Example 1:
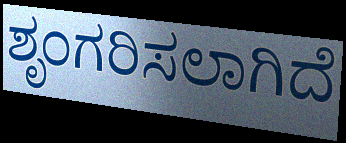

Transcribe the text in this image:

ಶೃಂಗರಿಸಲಾಗಿದೆ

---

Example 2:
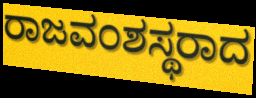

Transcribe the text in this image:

ರಾಜವಂಶಸ್ಥರಾದ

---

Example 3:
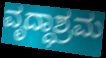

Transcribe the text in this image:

ವೃದ್ಧಾಶ್ರಮ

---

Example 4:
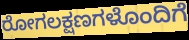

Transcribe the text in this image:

ರೋಗಲಕ್ಷಣಗಳೊಂದಿಗೆ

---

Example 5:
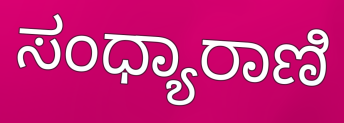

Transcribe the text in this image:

ಸಂಧ್ಯಾರಾಣಿ